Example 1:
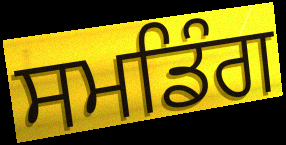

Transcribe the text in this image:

ਸਮਡਿੰਗ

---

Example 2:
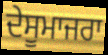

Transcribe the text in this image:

ਦੇਸੂਮਾਜਰਾ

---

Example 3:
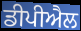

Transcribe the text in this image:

ਡੀਪੀਐਲ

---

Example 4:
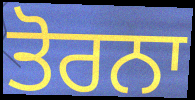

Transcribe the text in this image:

ਤੋਰਨਾ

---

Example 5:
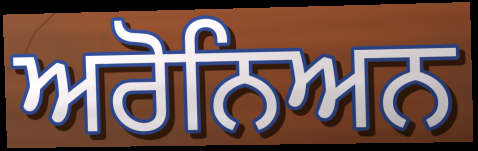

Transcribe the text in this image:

ਅਰੋਨਿਅਨ